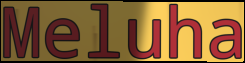
Meluha